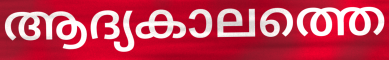
ആദ്യകാലത്തെ